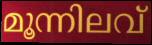
മൂന്നിലവ്